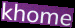
khome